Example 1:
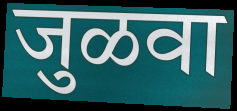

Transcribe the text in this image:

जुळवा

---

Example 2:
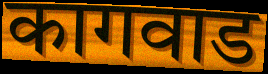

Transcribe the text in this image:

कागवाड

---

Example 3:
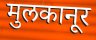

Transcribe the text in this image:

मुलकानूर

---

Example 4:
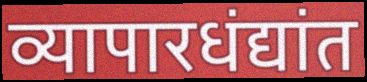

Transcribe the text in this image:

व्यापारधंद्यांत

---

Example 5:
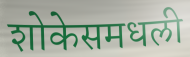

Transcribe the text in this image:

शोकेसमधली